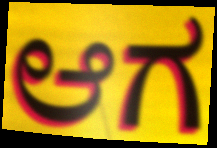
ಆಗ